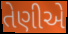
તેણીએ